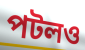
পটলও